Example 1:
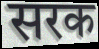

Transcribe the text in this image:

सरक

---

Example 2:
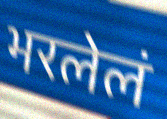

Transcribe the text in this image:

भरलेलं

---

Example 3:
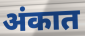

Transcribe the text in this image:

अंकात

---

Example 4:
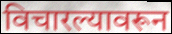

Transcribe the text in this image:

विचारल्यावरून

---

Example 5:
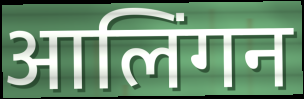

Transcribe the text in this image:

आलिंगन